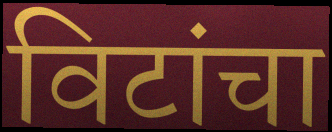
विटांचा